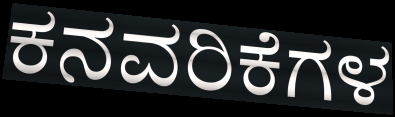
ಕನವರಿಕೆಗಳ